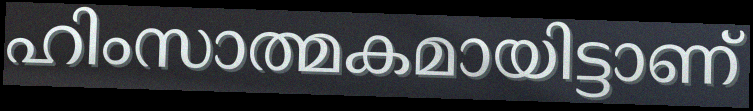
ഹിംസാത്മകമായിട്ടാണ്